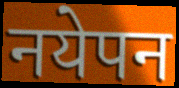
नयेपन